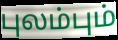
புலம்பும்